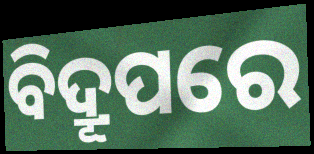
ବିଦ୍ରୂପରେ